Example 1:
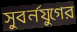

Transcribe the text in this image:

সুবর্নযুগের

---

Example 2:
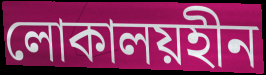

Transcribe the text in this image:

লোকালয়হীন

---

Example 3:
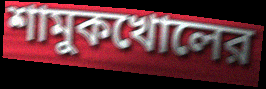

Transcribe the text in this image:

শামুকখোলের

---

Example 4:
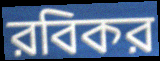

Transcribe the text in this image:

রবিকর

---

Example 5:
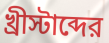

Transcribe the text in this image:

খ্রীস্টাব্দের